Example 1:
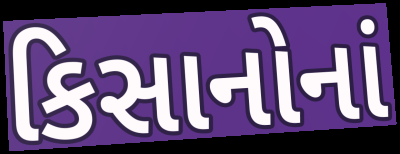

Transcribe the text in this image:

કિસાનોનાં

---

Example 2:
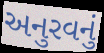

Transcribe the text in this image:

અનુરવનું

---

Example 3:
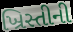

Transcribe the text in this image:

ખ્રિસ્તીની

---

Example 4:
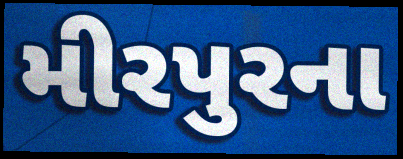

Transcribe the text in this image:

મીરપુરના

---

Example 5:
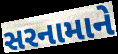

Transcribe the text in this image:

સરનામાને